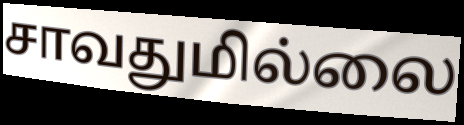
சாவதுமில்லை